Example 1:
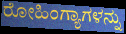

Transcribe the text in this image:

ರೋಹಿಂಗ್ಯಾಗಳನ್ನು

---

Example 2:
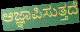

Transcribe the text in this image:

ಆಜ್ಞಾಪಿಸುತ್ತದೆ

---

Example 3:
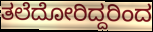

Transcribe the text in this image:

ತಲೆದೋರಿದ್ದರಿಂದ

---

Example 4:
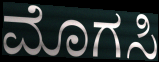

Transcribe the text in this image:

ಮೊಗಸಿ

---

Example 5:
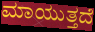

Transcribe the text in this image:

ಮಾಯುತ್ತದೆ